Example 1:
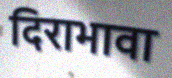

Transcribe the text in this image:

दिराभावा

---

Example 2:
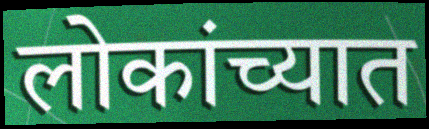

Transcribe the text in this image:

लोकांच्यात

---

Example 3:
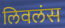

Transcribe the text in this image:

लिवलंस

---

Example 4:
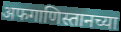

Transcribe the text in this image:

अफगाणिस्तानच्या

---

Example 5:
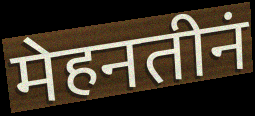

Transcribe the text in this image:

मेहनतीनं